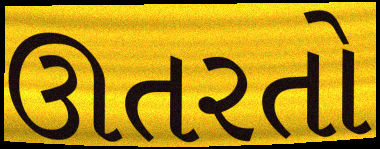
ઊતરતો